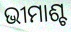
ଭୀମାଶ୍ଚ